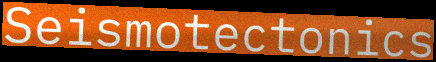
Seismotectonics